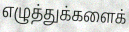
எழுத்துக்களைக்